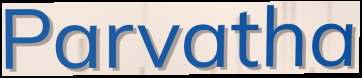
Parvatha